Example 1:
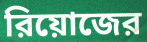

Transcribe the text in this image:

রিয়োজের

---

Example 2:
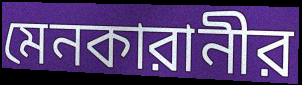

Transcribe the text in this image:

মেনকারানীর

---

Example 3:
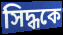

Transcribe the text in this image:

সিদ্ধকে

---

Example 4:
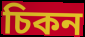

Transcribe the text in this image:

চিকন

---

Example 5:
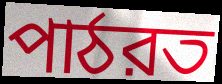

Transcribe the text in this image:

পাঠরত